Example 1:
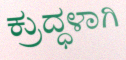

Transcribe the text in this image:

ಕ್ರುದ್ಧಳಾಗಿ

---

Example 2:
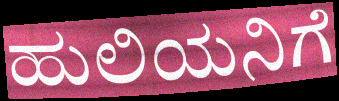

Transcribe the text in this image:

ಹುಲಿಯನಿಗೆ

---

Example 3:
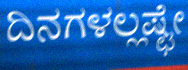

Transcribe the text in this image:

ದಿನಗಳಲ್ಲಷ್ಟೇ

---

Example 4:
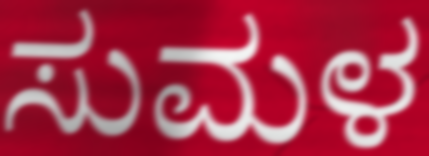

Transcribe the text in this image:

ಸುಮಳ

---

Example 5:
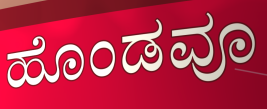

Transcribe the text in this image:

ಹೊಂಡವೂ